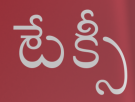
టేక్సీ